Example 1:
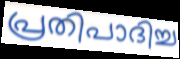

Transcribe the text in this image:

പ്രതിപാദിച്ച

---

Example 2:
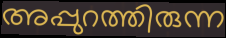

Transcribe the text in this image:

അപ്പുറത്തിരുന്ന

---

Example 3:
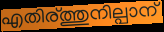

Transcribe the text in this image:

എതിര്ത്തുനില്പാന്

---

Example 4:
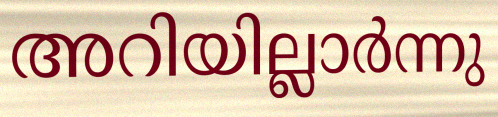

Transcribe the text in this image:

അറിയില്ലാർന്നു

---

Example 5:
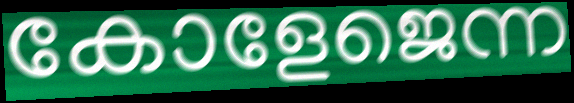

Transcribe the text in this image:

കോളേജെന്ന